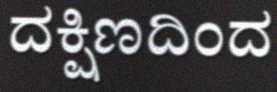
ದಕ್ಷಿಣದಿಂದ